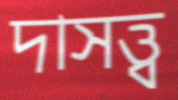
দাসত্ত্ব